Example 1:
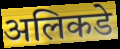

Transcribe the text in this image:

अलिकडे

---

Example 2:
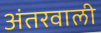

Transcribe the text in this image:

अंतरवाली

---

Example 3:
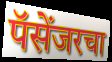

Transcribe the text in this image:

पॅसेंजरचा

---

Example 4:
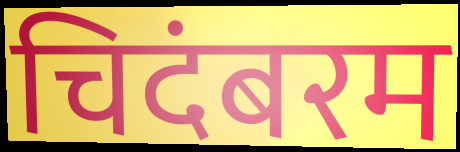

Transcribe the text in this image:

चिदंबरम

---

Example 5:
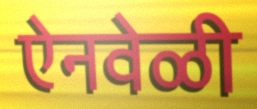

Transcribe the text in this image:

ऐनवेळी